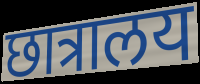
छात्रालय